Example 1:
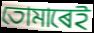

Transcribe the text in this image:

তোমাৰেই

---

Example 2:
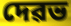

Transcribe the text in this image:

দেৱভ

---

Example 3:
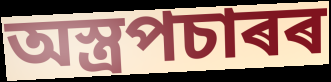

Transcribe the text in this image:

অস্ত্ৰপচাৰৰ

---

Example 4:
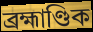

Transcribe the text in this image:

ব্ৰহ্মাণ্ডিক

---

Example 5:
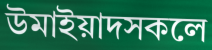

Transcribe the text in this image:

উমাইয়াদসকলে